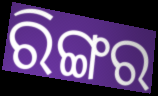
ରିଙ୍ଗର